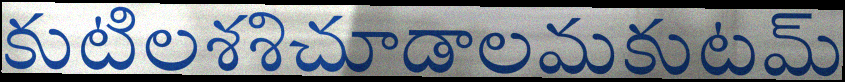
కుటిలశశిచూడాలమకుటమ్